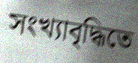
সংখ্যাবৃদ্ধিতে